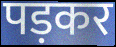
पड़कर